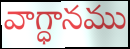
వాగ్ధానము